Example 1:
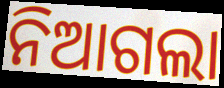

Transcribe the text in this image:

ନିଆଗଲା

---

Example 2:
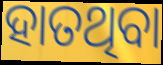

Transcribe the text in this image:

ହାତଥିବା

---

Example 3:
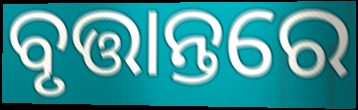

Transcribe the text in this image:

ବୃତ୍ତାନ୍ତରେ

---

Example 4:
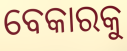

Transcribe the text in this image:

ବେକାରକୁ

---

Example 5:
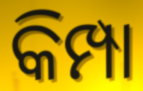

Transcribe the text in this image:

କିମ୍ପା